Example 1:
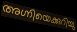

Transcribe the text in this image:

അഗ്നിയെക്കുറിച്ചു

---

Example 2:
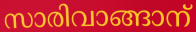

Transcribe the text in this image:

സാരിവാങ്ങാന്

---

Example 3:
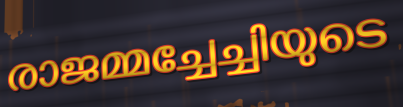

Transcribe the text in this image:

രാജമ്മച്ചേച്ചിയുടെ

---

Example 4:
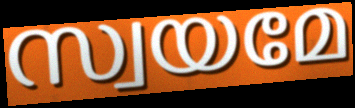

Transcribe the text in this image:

സ്വയമേ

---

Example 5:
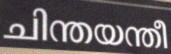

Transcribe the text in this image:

ചിന്തയന്തീ